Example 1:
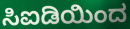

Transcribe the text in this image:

ಸಿಐಡಿಯಿಂದ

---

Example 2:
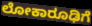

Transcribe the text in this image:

ಲೋಕಾರೂಢಿಗೆ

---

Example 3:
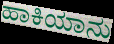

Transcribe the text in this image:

ಹಾಕಿಯಾನು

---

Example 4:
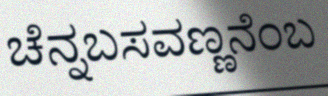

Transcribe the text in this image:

ಚೆನ್ನಬಸವಣ್ಣನೆಂಬ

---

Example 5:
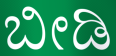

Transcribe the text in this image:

ಬೀಡಿ